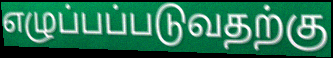
எழுப்பப்படுவதற்கு